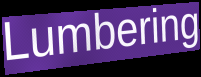
Lumbering